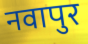
नवापुर